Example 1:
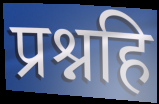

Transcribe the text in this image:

प्रश्नहि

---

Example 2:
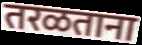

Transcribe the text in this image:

तरळताना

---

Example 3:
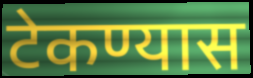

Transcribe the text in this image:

टेकण्यास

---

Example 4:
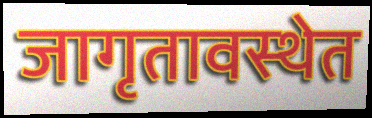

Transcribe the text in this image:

जागृतावस्थेत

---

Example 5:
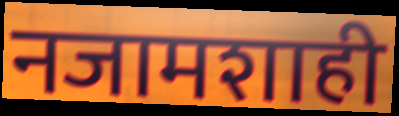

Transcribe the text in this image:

नजामशाही